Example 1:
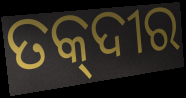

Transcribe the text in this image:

ତକ୍‌ଦୀର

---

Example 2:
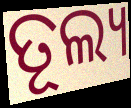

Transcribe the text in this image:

ତୂଲ୍ୟ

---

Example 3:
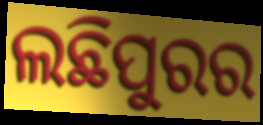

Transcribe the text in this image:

ଲଛିପୁରର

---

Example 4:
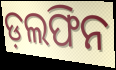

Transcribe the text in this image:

ଡ଼ଲଫିନ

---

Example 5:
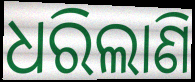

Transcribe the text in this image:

ଧରିଲାଣି